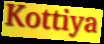
Kottiya